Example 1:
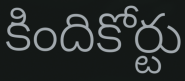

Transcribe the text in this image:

కిందికోర్టు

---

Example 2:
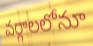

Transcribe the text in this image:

వర్గాలలోనూ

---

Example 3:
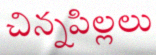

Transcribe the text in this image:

చిన్నపిల్లలు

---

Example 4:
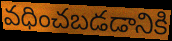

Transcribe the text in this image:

వధించబడడానికి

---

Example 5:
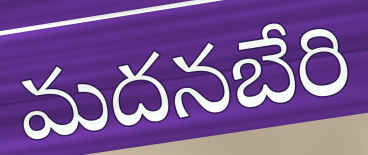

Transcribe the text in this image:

మదనబేరి